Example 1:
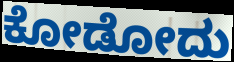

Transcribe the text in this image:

ಕೋಡೋದು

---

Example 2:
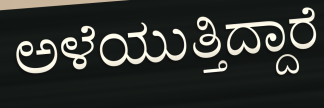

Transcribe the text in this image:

ಅಳೆಯುತ್ತಿದ್ದಾರೆ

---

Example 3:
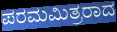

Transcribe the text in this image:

ಪರಮಮಿತ್ರರಾದ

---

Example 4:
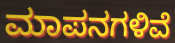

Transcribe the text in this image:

ಮಾಪನಗಳಿವೆ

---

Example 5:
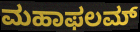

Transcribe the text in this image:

ಮಹಾಫಲಮ್